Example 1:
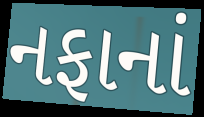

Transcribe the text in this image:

નફાનાં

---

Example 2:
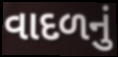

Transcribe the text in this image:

વાદળનું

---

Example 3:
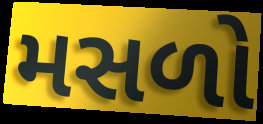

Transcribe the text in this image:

મસળો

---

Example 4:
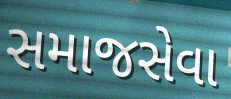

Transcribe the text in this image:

સમાજસેવા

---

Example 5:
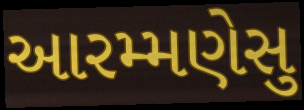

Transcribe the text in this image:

આરમ્મણેસુ